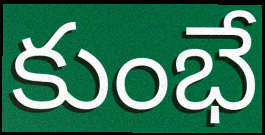
కుంభే